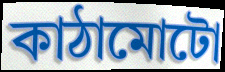
কাঠামোটো